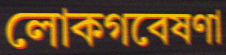
লোকগবেষণা